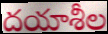
దయాశీల